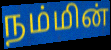
நம்மின்